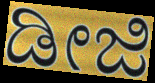
ಡೀಜಿ